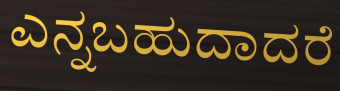
ಎನ್ನಬಹುದಾದರೆ